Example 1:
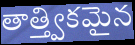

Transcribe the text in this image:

తాత్త్వికమైన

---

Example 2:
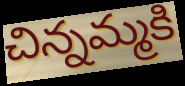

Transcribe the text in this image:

చిన్నమ్మకి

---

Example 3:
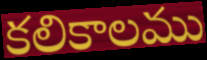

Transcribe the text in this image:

కలికాలము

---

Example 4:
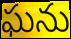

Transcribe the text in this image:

ఘను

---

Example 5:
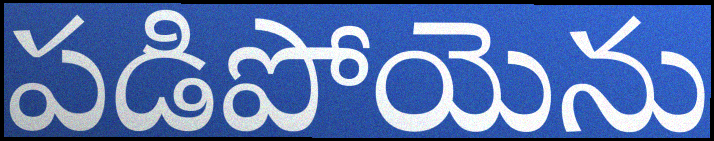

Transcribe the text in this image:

పడిపోయెను